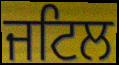
ਜਟਿਲ